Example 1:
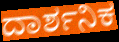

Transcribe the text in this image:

ದಾರ್ಶನಿಕ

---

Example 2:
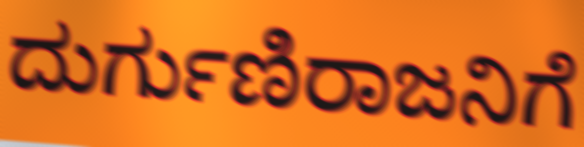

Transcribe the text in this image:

ದುರ್ಗುಣಿರಾಜನಿಗೆ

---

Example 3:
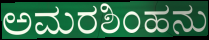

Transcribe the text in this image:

ಅಮರಶಿಂಹನು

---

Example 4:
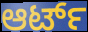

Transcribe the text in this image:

ಆರ್ಟ್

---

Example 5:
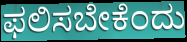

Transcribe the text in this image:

ಫಲಿಸಬೇಕೆಂದು